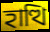
হাত্থি